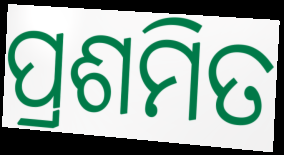
ପ୍ରଶମିତ